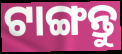
ଟାଙ୍ଗନ୍ତୁ